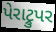
પેરાટ્રુપર